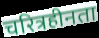
चरित्रहीनता